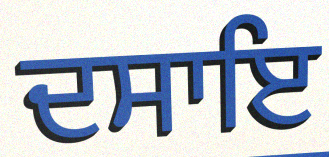
ਦਸਾਇ